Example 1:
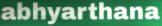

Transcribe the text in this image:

abhyarthana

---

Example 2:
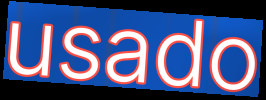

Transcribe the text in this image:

usado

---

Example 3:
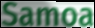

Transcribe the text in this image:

Samoa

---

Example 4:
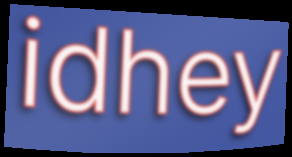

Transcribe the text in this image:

idhey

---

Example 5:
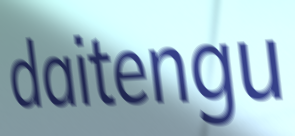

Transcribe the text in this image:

daitengu